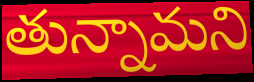
తున్నామని